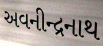
અવનીન્દ્રનાથ